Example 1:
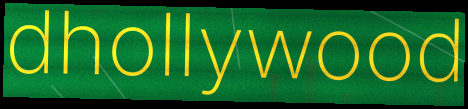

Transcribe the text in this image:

dhollywood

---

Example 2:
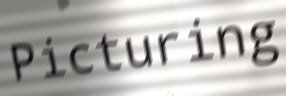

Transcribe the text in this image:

Picturing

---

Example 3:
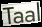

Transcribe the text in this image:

Taal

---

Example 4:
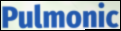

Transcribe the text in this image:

Pulmonic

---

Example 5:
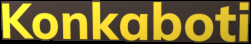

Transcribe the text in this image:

Konkaboti